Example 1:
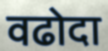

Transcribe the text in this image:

वढोदा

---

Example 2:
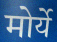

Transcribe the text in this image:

मोर्ये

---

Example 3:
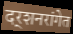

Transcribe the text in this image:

दर्शनरांगेत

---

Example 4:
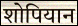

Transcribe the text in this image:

शोपियान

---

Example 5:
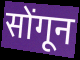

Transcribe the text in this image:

सोंगून